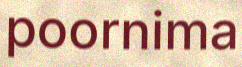
poornima